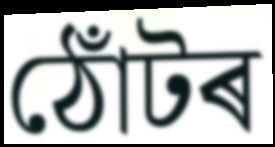
ঠোঁটৰ